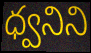
ధ్వనిని